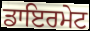
ਡਾਇਰਮੇਟ